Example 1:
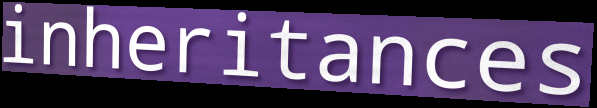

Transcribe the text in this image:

inheritances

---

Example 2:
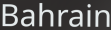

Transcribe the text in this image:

Bahrain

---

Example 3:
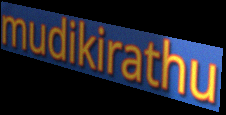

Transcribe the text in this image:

mudikirathu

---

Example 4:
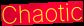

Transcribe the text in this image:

Chaotic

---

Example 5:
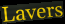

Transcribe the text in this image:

Lavers